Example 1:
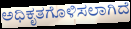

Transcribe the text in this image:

ಅಧಿಕೃತಗೊಳಿಸಲಾಗಿದೆ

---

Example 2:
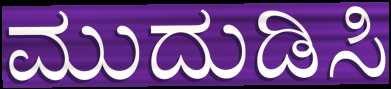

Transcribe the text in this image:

ಮುದುಡಿಸಿ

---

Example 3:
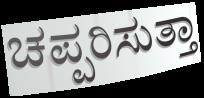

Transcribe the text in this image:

ಚಪ್ಪರಿಸುತ್ತಾ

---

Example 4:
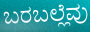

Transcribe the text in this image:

ಬರಬಲ್ಲೆವು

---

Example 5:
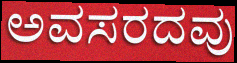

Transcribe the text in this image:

ಅವಸರದವು